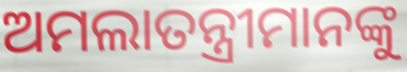
ଅମଲାତନ୍ତ୍ରୀମାନଙ୍କୁ